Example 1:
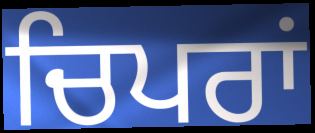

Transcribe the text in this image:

ਚਿਪਰਾਂ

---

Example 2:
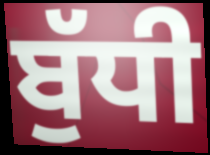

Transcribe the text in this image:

ਬੁੱਧੀ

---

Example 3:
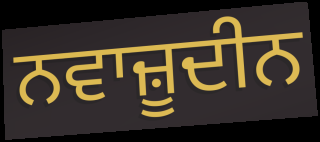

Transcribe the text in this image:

ਨਵਾਜ਼ੂਦੀਨ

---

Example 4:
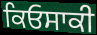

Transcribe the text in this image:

ਕਿਓਸਾਕੀ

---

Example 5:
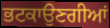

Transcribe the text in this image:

ਭਟਕਾਉਣਗੀਆਂ